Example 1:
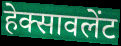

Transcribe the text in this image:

हेक्सावलेंट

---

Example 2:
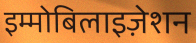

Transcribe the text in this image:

इम्मोबिलाइज़ेशन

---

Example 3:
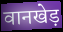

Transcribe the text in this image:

वानखेड़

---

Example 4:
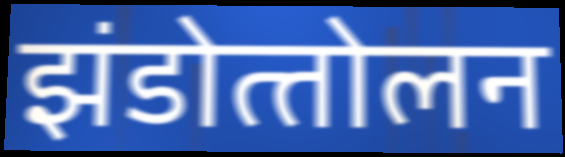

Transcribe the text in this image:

झंडोत्‍तोलन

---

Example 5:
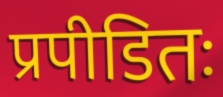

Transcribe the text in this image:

प्रपीडितः